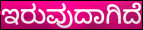
ಇರುವುದಾಗಿದೆ